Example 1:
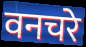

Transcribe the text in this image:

वनचरे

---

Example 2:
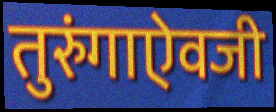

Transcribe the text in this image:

तुरुंगाऐवजी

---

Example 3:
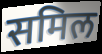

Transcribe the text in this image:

समिल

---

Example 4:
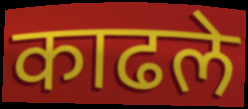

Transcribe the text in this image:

काढले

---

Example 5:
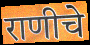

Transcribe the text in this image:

राणीचे